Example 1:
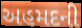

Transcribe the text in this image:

અહમદની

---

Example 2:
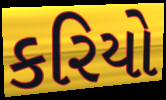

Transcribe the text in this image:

કરિયો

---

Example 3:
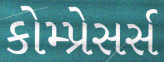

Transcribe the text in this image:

કોમ્પ્રેસર્સ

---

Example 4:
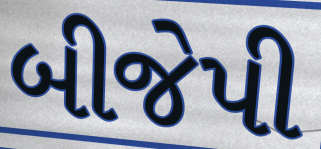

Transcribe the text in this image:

બીજેપી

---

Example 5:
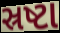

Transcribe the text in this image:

સ્રષ્ટા